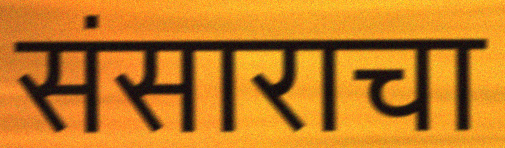
संसाराचा